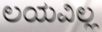
ಲಯವಿಲ್ಲ